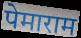
पेमाराम